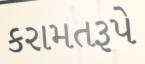
કરામતરૂપે